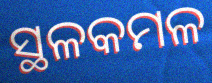
ସ୍ଥଳକମଳ